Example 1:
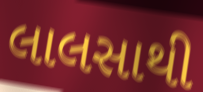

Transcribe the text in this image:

લાલસાથી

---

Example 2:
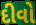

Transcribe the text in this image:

દીવો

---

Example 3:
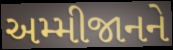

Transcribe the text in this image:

અમ્મીજાનને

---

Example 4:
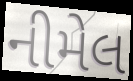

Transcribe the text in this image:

નીમેલ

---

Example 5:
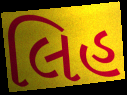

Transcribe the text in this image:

લિહ